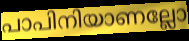
പാപിനിയാണല്ലോ